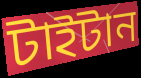
টাইটান